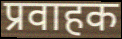
प्रवाहक